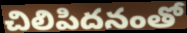
చిలిపిదనంతో